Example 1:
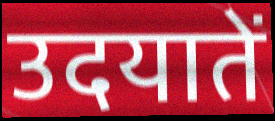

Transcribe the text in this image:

उदयातें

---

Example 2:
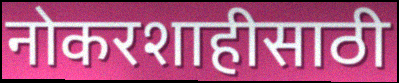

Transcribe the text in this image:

नोकरशाहीसाठी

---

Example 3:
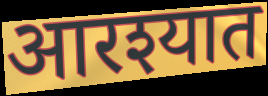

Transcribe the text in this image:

आरश्यात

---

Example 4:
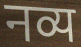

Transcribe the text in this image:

नव्य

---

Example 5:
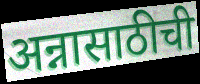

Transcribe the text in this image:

अन्नासाठीची